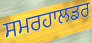
ਸਮਰਹਾਲਡਰ